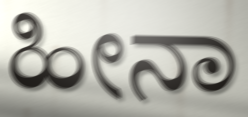
ಹೀನಾ